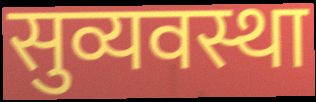
सुव्यवस्था